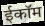
ईकॉम